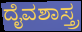
ದೈವಶಾಸ್ತ್ರ